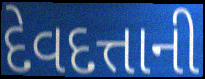
દેવદત્તાની